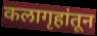
कलागृहांतून